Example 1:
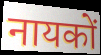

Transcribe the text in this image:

नायकों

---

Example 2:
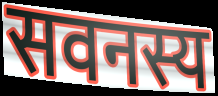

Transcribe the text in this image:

सवनस्य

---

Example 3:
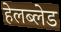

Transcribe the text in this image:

हेलब्लेड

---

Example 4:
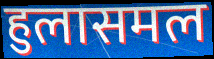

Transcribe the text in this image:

हुलासमल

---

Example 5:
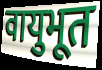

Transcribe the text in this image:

वायुभूत